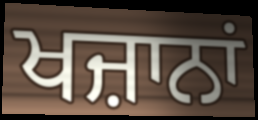
ਖਜ਼ਾਨਾਂ